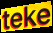
teke